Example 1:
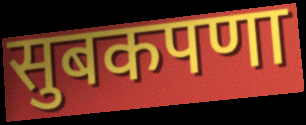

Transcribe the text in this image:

सुबकपणा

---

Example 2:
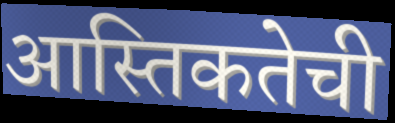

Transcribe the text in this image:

आस्तिकतेची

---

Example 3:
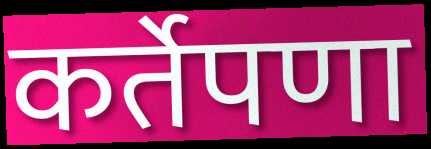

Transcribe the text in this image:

कर्तेपणा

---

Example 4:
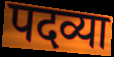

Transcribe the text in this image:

पदव्या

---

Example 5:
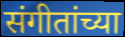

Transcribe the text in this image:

संगीतांच्या